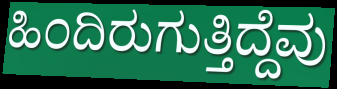
ಹಿಂದಿರುಗುತ್ತಿದ್ದೆವು